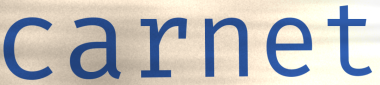
carnet